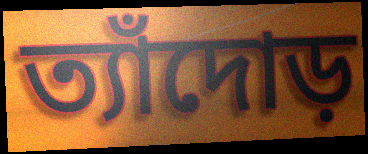
ত্যাঁদোড়